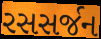
રસસર્જન